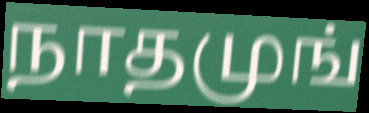
நாதமுங்